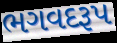
ભગવદરૂપ